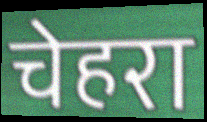
चेहरा